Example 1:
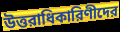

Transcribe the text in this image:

উত্তরাধিকারিণীদের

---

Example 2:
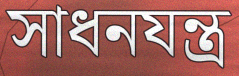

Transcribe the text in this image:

সাধনযন্ত্র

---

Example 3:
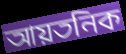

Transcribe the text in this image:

আয়তনিক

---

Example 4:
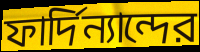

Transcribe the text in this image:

ফার্দিন্যান্দের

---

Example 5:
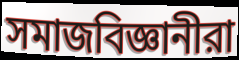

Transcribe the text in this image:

সমাজবিজ্ঞানীরা